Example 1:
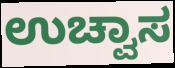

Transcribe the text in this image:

ಉಚ್ವಾಸ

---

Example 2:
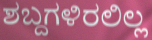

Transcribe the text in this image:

ಶಬ್ದಗಳಿರಲಿಲ್ಲ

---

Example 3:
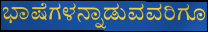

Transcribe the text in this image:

ಭಾಷೆಗಳನ್ನಾಡುವವರಿಗೂ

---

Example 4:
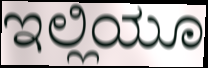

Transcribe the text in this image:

ಇಲ್ಲಿಯೂ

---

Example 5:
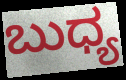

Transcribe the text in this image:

ಬುಧ್ಯ